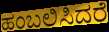
ಹಂಬಲಿಸಿದರೆ